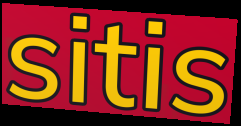
sitis